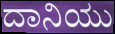
ದಾನಿಯು